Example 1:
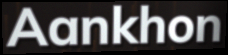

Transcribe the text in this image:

Aankhon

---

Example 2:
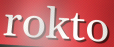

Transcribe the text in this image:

rokto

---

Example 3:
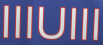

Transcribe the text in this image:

IIIUIII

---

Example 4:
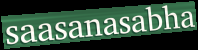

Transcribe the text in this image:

saasanasabha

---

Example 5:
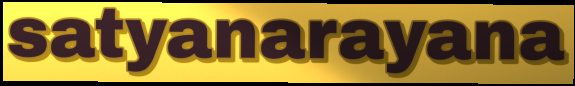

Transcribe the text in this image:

satyanarayana